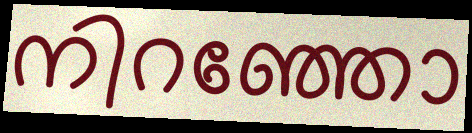
നിറഞ്ഞോ